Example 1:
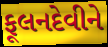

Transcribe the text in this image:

ફૂલનદેવીને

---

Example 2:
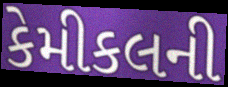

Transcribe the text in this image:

કેમીકલની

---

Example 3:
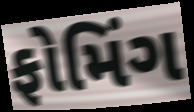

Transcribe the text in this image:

ફોમિંગ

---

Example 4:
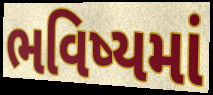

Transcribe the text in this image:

ભવિષ્યમાં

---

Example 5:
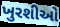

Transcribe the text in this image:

ખુરશીઓ